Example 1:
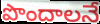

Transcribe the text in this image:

పొందాలనే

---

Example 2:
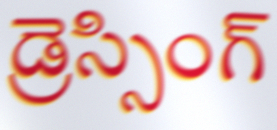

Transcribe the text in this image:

డ్రెస్సింగ్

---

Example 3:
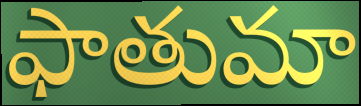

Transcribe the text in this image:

ఫాతుమా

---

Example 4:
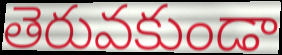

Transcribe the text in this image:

తెరువకుండా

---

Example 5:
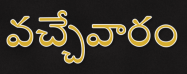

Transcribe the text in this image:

వచ్చేవారం